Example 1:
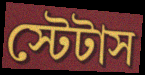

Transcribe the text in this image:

স্টেটাস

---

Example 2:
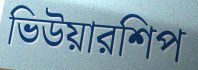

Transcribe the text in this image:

ভিউয়ারশিপ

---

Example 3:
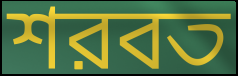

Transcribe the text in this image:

শরবত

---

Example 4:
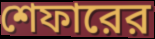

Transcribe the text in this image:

শেফারের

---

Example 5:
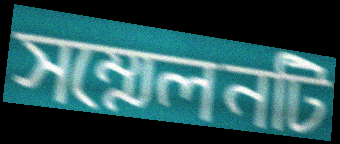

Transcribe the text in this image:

সম্মেলনটি